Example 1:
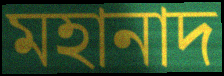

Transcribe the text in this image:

মহানাদ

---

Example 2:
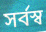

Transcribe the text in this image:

সৰ্বস্ব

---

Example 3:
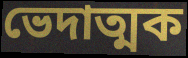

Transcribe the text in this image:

ভেদাত্মক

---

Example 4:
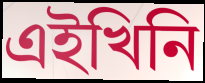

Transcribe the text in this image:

এইখিনি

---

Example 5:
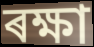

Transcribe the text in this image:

ৰক্ষা